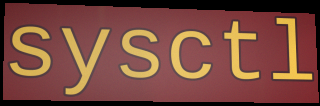
sysctl